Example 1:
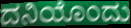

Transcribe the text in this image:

ದನಿಯೊಂದು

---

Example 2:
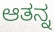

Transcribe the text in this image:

ಆತನ್ನ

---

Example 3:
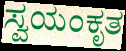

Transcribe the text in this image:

ಸ್ವಯಂಕೃತ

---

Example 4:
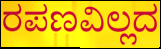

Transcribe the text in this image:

ರಪಣವಿಲ್ಲದ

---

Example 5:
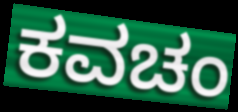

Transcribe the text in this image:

ಕವಚಂ